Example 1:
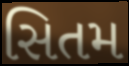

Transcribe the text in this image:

સિતમ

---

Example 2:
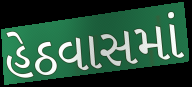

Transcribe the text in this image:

હેઠવાસમાં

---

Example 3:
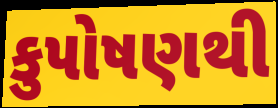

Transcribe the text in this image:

કુપોષણથી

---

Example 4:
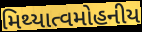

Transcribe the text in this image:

મિથ્યાત્વમોહનીય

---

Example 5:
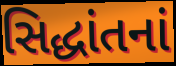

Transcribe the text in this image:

સિદ્ધાંતનાં